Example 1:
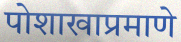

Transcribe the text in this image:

पोशाखाप्रमाणे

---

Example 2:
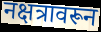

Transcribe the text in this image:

नक्षत्रावरून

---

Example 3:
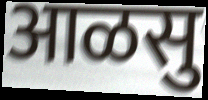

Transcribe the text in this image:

आळसु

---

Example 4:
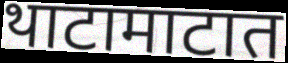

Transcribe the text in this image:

थाटामाटात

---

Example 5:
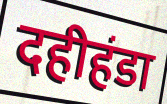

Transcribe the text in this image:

दहीहंडा